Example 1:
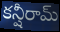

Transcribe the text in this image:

కన్షీరామ్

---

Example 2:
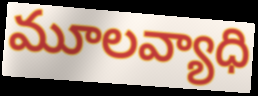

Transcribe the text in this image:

మూలవ్యాధి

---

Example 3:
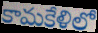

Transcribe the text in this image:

కామకేళిలో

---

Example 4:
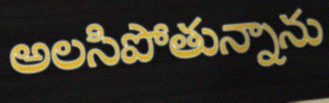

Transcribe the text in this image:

అలసిపోతున్నాను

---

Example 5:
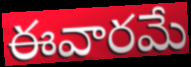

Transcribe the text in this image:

ఈవారమే